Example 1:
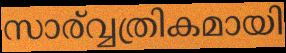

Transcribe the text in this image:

സാര്വ്വത്രികമായി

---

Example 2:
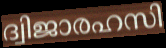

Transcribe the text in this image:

ദ്വിജാരഹസി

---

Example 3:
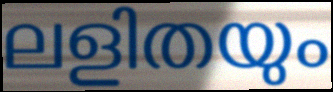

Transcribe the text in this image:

ലളിതയും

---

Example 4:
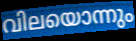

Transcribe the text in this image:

വിലയൊന്നും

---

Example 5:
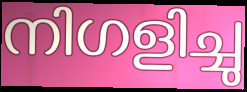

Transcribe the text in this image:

നിഗളിച്ചു